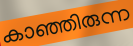
കാഞ്ഞിരുന്ന